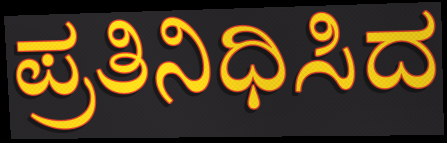
ಪ್ರತಿನಿಧಿಸಿದ